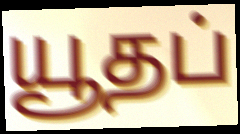
யூதப்